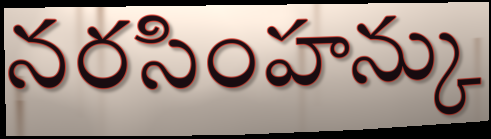
నరసింహన్కు